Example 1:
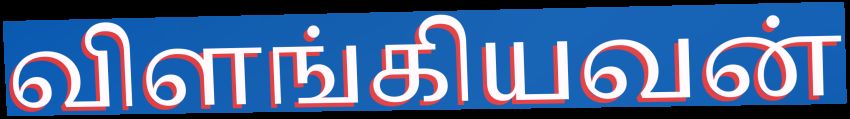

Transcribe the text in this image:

விளங்கியவன்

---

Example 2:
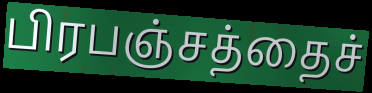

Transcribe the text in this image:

பிரபஞ்சத்தைச்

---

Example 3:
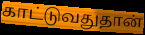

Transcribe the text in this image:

காட்டுவதுதான்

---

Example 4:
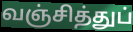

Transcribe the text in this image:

வஞ்சித்துப்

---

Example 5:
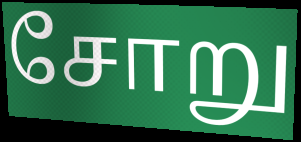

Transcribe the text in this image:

சோறு